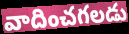
వాదించగలడు